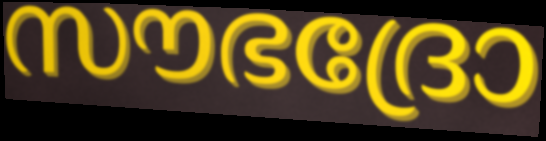
സൗഭദ്രോ